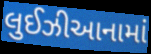
લુઈઝીઆનામાં